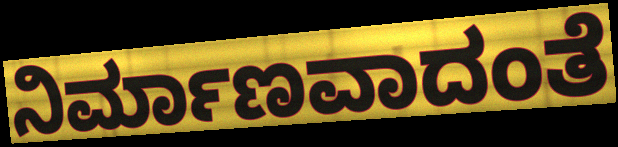
ನಿರ್ಮಾಣವಾದಂತೆ